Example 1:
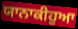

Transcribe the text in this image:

ਯਾਨਾਕੀਹੁਆ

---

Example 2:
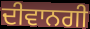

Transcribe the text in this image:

ਦੀਵਾਨਗੀ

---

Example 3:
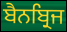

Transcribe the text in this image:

ਬੈਨਬ੍ਰਿਜ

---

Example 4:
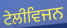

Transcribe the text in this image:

ਟੇਲੀਵਿਜਨ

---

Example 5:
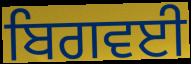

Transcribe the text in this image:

ਬਿਗਵਈ